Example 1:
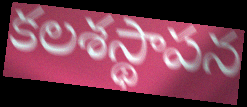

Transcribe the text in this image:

కలశస్థాపన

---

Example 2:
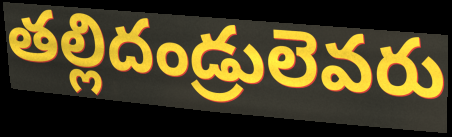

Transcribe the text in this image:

తల్లిదండ్రులెవరు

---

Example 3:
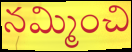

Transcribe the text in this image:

నమ్మించి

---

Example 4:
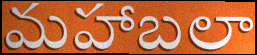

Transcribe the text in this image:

మహాబలా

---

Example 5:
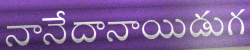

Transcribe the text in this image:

నానేదానాయిడుగ